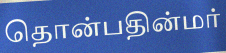
தொன்பதின்மர்